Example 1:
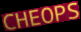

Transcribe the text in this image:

CHEOPS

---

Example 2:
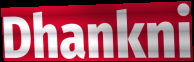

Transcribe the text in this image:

Dhankni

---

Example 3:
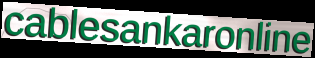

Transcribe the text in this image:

cablesankaronline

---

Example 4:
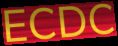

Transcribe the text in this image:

ECDC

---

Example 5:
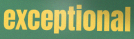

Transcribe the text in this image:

exceptional